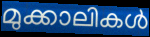
മുക്കാലികൾ